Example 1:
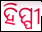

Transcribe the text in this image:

ହିପ୍ପୀ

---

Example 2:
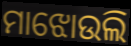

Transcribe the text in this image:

ମାଝୋଉଲି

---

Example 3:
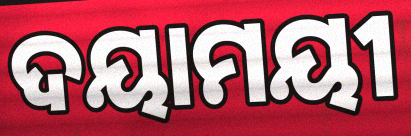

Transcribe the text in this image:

ଦୟାମୟୀ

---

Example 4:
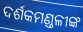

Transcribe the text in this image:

ଦର୍ଶକମଣ୍ଡଳୀଙ୍କ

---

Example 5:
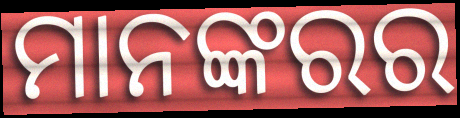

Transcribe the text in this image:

ମାନଙ୍କରର